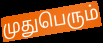
முதுபெரும்